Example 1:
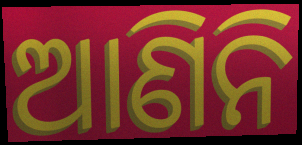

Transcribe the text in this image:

ଆଣିନି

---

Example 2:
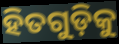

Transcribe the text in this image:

ହିତଗୁଡ଼ିକୁ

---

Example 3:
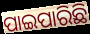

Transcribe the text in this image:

ପାଇପାରିଛି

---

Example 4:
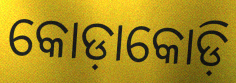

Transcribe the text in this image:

କୋଡ଼ାକୋଡ଼ି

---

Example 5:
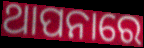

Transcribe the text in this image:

ଥାପନାରେ